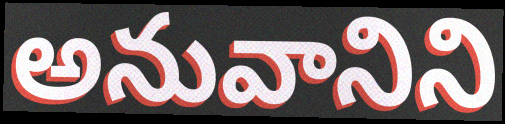
అనువానిని